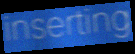
inserting